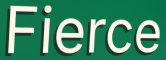
Fierce